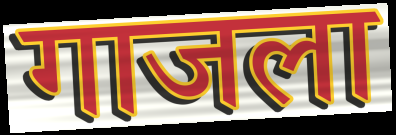
गाजला